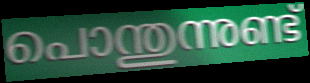
പൊന്തുന്നുണ്ട്